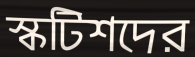
স্কটিশদের